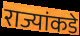
राज्यांकडे